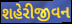
શહેરીજીવન